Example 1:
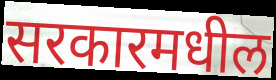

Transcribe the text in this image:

सरकारमधील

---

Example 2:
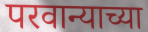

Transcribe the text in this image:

परवान्याच्या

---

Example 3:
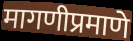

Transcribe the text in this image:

मागणीप्रमाणे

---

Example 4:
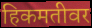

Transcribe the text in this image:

हिकमतीवर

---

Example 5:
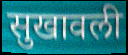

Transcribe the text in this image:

सुखावली